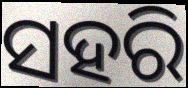
ସହରି